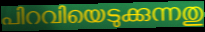
പിറവിയെടുക്കുന്നതു